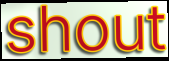
shout